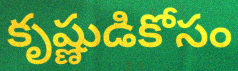
కృష్ణుడికోసం